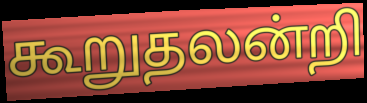
கூறுதலன்றி